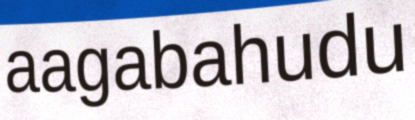
aagabahudu